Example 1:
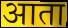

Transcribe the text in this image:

आता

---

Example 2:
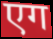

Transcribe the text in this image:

एग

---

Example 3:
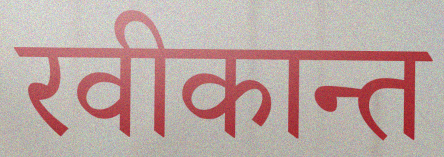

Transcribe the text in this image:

रवीकान्त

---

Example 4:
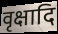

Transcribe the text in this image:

वृक्षादि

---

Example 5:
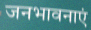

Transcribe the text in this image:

जनभावनाएं